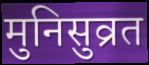
मुनिसुव्रत